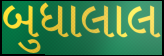
બુધાલાલ